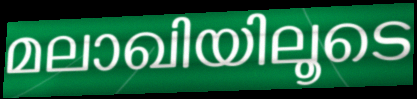
മലാഖിയിലൂടെ